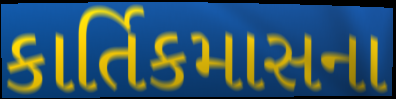
કાર્તિકમાસના